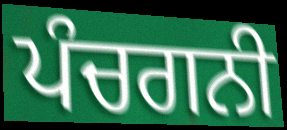
ਪੰਚਗਨੀ